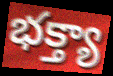
భక్త్యా